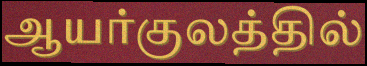
ஆயர்குலத்தில்